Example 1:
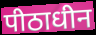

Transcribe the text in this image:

पीठाधीन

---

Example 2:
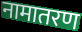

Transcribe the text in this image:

नामातरण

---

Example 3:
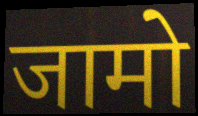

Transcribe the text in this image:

जामो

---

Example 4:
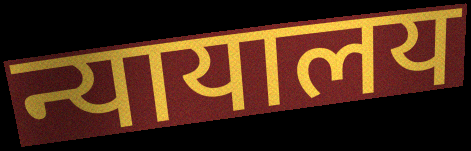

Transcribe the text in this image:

न्यायालय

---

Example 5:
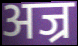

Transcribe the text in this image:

अज्र